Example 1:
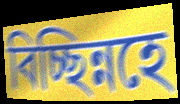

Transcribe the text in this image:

বিচ্ছিন্নহে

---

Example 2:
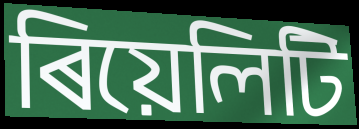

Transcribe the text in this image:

ৰিয়েলিটি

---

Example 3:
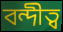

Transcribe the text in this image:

বন্দীত্ব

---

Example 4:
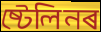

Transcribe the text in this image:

ষ্টেলিনৰ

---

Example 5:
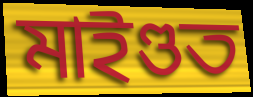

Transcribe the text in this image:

মাইণ্ডত